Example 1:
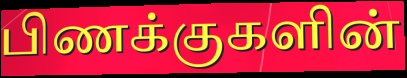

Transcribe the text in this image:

பிணக்குகளின்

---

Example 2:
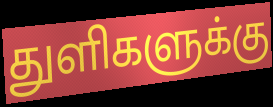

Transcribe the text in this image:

துளிகளுக்கு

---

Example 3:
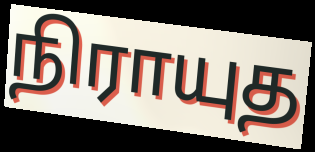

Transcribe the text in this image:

நிராயுத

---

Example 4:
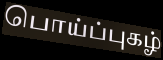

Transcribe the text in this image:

பொய்ப்புகழ்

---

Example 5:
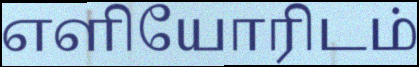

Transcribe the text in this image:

எளியோரிடம்